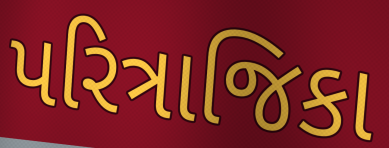
પરિત્રાજિકા